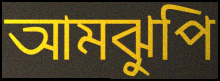
আমঝুপি